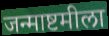
जन्माष्टमीला